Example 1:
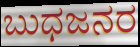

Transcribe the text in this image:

ಬುಧಜನರ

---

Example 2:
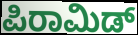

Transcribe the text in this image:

ಪಿರಾಮಿಡ್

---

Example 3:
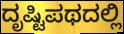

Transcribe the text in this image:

ದೃಷ್ಟಿಪಥದಲ್ಲಿ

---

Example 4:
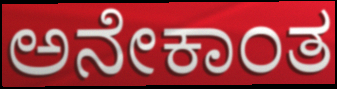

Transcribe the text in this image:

ಅನೇಕಾಂತ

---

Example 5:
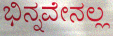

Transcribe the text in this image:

ಭಿನ್ನವೇನಲ್ಲ